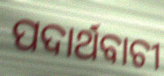
ପଦାର୍ଥବାଚୀ